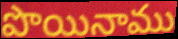
పొయినాము